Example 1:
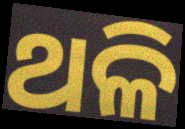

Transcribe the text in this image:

ଥଳି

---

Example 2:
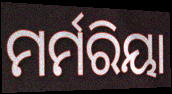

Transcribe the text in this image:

ମର୍ମରିୟା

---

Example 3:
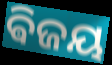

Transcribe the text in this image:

ଵିଜୟ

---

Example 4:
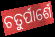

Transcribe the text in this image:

ଚତୁର୍ପାର୍ଶେ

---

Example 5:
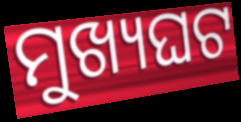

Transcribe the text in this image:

ମୁଖ୍ୟଘଟ